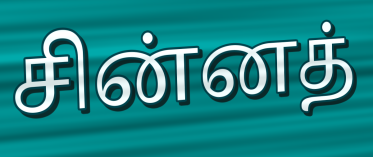
சின்னத்